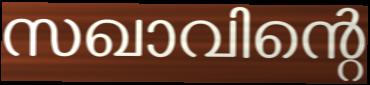
സഖാവിന്റെ